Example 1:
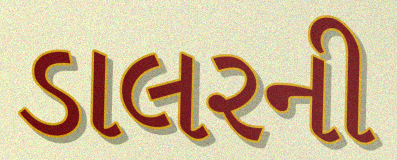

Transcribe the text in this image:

ડાલરની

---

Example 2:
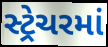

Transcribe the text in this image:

સ્ટ્રેચરમાં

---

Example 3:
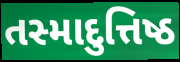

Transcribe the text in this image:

તસ્માદુત્તિષ્ઠ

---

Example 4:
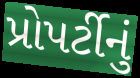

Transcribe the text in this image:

પ્રોપર્ટીનું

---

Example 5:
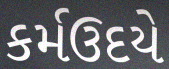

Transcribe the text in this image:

કર્મઉદયે